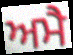
ਅਮੈ